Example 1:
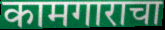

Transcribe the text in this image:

कामगाराचा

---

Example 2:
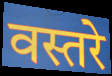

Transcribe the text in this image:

वस्तरे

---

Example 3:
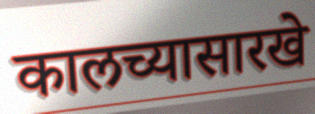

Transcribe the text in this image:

कालच्यासारखे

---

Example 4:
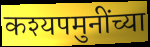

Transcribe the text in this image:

कश्यपमुनींच्या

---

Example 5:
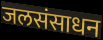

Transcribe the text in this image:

जलसंसाधन